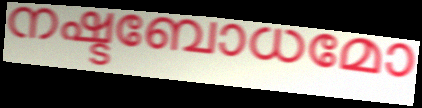
നഷ്ടബോധമോ